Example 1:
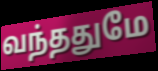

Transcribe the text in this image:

வந்ததுமே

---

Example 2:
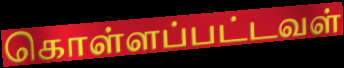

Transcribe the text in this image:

கொள்ளப்பட்டவள்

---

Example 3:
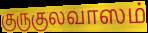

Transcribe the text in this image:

குருகுலவாஸம்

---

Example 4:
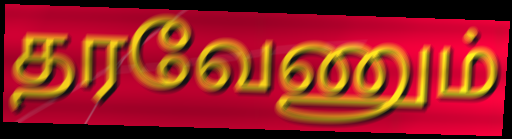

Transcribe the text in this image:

தரவேணும்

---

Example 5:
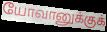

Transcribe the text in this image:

யோவானுக்குக்